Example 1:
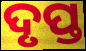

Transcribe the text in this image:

ଦୃପ୍ତ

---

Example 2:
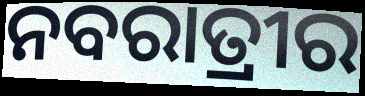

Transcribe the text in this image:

ନବରାତ୍ରୀର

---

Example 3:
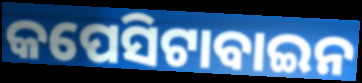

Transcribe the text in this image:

କପେସିଟାବାଇନ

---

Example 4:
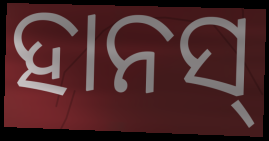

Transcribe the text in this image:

ହାନସ୍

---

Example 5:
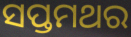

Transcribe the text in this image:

ସପ୍ତମଥର